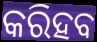
କରିହବ